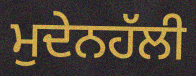
ਮੁਦੇਨਹੱਲੀ